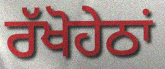
ਰੱਖੋਹੇਠਾਂ